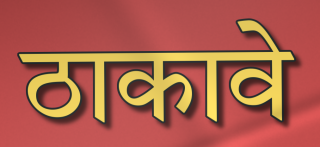
ठाकावे